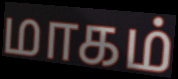
மாகம்